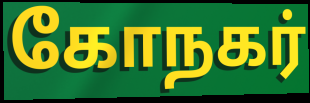
கோநகர்